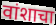
वांशाचा